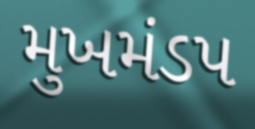
મુખમંડપ